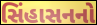
સિંહાસનનો